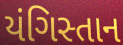
યંગિસ્તાન